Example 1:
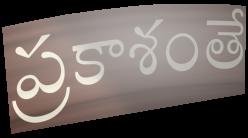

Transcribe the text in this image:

ప్రకాశంతే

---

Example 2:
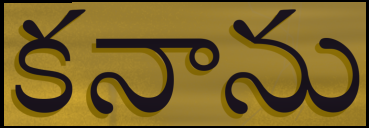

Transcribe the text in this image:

కనాను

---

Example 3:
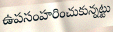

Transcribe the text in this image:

ఉపసంహరించుకున్నట్టు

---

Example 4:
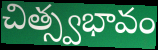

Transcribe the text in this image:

చిత్స్వభావం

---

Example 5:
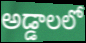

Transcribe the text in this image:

అడ్డాలలో